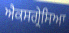
ਐਕਸਗ੍ਰੇਸਿਆ